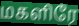
மகளிரே